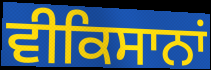
ਵੀਕਿਸਾਨਾਂ